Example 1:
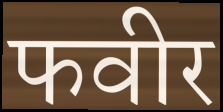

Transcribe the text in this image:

फवीर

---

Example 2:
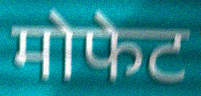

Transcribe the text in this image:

मोफेट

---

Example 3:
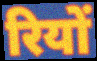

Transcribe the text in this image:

रियों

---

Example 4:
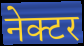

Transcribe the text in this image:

नेक्टर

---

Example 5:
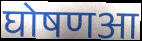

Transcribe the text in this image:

घोषणआ